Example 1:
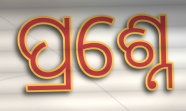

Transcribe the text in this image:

ପ୍ରଶ୍ନେ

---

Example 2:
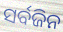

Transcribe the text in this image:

ସର୍ବଜିନ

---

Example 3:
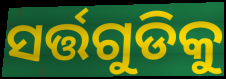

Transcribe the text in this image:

ସର୍ତ୍ତଗୁଡିକୁ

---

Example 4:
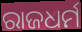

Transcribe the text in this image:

ରାଜଧର୍ମ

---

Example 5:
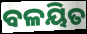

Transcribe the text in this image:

ବଳୟିତ